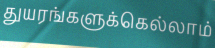
துயரங்களுக்கெல்லாம்